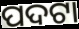
ପଦଟା